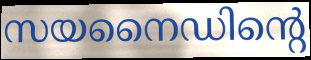
സയനൈഡിന്റെ